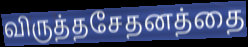
விருத்தசேதனத்தை